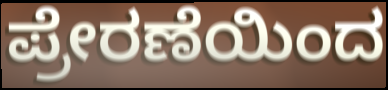
ಪ್ರೇರಣೆಯಿಂದ